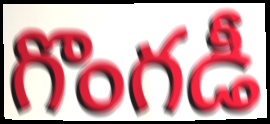
గొంగడీ